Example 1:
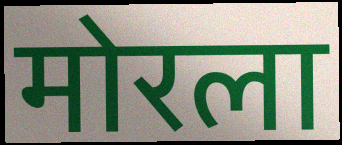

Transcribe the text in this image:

मोरला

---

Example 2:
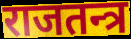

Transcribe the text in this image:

राजतन्त्र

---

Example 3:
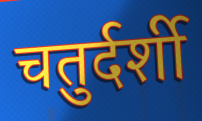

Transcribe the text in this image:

चतुर्दर्शी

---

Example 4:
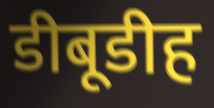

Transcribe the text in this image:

डीबूडीह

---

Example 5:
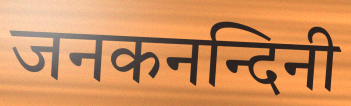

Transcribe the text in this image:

जनकनन्दिनी